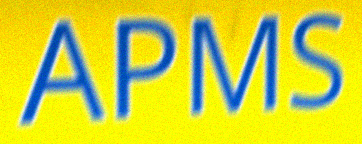
APMS